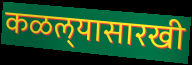
कळल्यासारखी